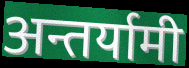
अन्‍तर्यामी